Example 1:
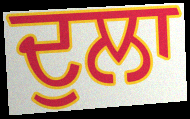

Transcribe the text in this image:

ਦੁਲਾ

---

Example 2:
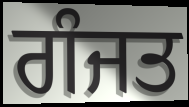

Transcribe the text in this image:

ਗੰਜਤ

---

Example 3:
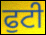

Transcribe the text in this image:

ਫੁਟੀ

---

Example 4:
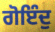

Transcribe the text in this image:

ਗੋਇੰਦੁ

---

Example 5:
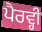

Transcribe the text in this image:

ਪੈਰਵ੍ਹੀ